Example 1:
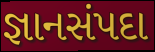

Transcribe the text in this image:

જ્ઞાનસંપદા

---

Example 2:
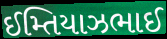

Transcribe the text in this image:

ઈમ્તિયાઝભાઈ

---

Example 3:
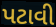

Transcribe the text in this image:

પટાવી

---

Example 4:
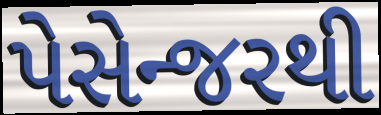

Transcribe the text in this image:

પેસેન્જરથી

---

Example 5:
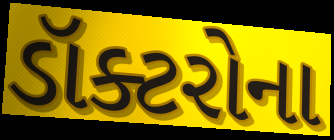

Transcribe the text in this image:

ડૉક્ટરોના